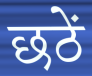
छठें